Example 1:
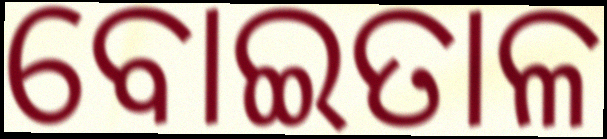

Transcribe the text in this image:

ବୋଇତାଳ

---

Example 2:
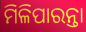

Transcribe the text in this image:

ମିଳିପାରନ୍ତା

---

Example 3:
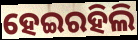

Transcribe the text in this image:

ହେଇରହିଲି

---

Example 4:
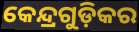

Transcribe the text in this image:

କେନ୍ଦ୍ରଗୁଡ଼ିକର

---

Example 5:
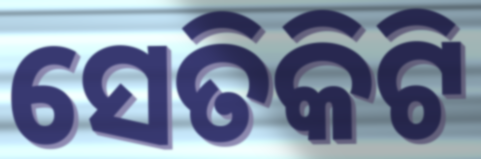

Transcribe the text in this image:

ସେତିକିଟି